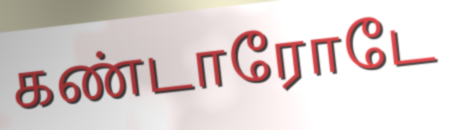
கண்டாரோடே